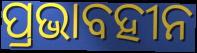
ପ୍ରଭାବହୀନ